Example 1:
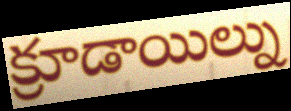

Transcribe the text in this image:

క్రూడాయిల్ను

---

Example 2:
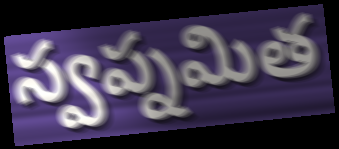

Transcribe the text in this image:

స్వప్నమిత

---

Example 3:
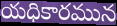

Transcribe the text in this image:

యధికారమున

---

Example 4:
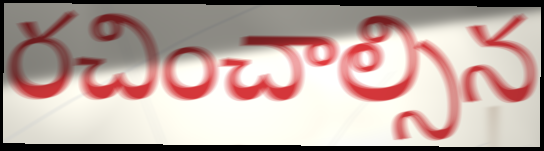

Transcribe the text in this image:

రచించాల్సిన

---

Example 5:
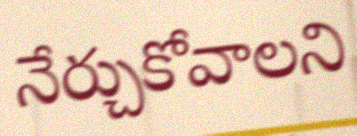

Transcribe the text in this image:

నేర్చుకోవాలని